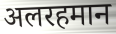
अलरहमान